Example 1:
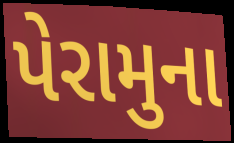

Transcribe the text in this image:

પેરામુના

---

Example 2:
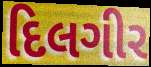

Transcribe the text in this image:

દિલગીર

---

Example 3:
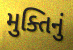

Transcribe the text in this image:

મુક્તિનું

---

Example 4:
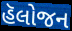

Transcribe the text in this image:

હૅલોજન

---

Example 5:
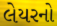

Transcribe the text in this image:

લેયરનો